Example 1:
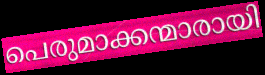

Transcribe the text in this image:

പെരുമാക്കന്മാരായി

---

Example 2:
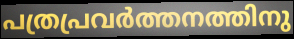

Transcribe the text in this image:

പത്രപ്രവർത്തനത്തിനു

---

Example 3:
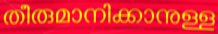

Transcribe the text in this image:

തീരുമാനിക്കാനുള്ള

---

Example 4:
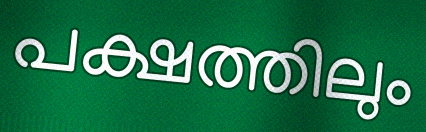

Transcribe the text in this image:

പക്ഷത്തിലും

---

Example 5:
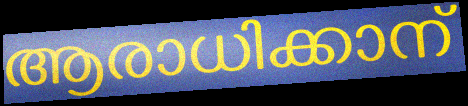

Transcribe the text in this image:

ആരാധിക്കാന്